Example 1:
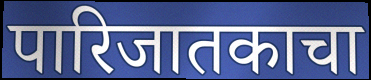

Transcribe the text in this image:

पारिजातकाचा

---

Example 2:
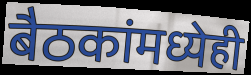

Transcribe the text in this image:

बैठकांमध्येही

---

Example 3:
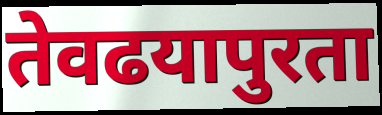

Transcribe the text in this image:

तेवढयापुरता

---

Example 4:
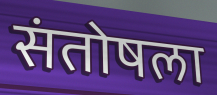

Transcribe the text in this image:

संतोषला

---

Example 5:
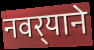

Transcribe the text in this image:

नवर्‍याने